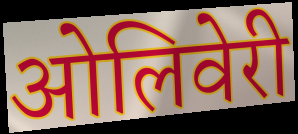
ओलिवेरी